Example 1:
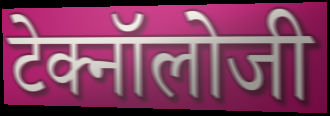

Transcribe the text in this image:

टेक्नॉलोजी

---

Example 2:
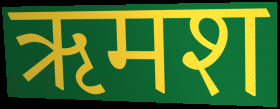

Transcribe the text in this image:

ऋमश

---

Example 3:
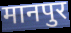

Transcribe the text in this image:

मानपुर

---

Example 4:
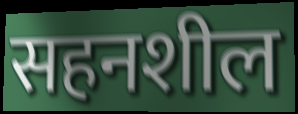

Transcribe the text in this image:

सहनशील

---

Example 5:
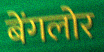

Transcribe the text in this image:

बेंगलोर